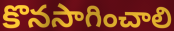
కొనసాగించాలి